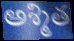
అశ్మిత